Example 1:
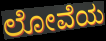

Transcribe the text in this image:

ಲೋವೆಯ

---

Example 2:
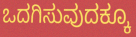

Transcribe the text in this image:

ಒದಗಿಸುವುದಕ್ಕೂ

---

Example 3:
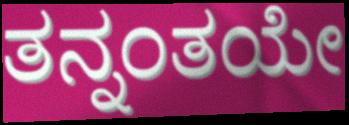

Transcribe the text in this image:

ತನ್ನಂತಯೇ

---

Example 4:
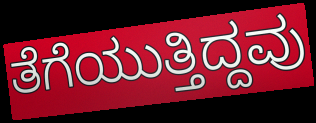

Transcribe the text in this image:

ತೆಗೆಯುತ್ತಿದ್ದವು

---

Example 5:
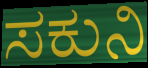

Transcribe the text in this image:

ಸಕುನಿ